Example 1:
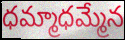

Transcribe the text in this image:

ధమ్మాధమ్మేన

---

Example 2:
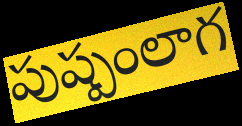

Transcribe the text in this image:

పుష్పంలాగ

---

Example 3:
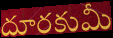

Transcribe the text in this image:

దూరకుమీ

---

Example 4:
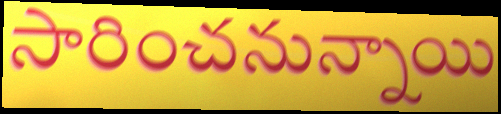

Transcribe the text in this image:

సారించనున్నాయి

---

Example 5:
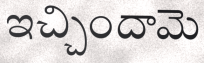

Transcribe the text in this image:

ఇచ్చిందామె